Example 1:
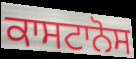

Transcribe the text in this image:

ਕਾਸਟਾਨੋਸ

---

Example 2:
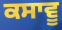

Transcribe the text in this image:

ਕਸਾਵੂ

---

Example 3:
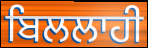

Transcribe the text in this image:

ਬਿਲਲਾਹੀ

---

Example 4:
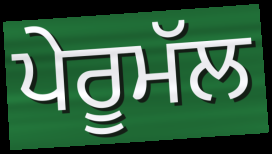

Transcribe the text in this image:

ਪੇਰੂਮੱਲ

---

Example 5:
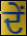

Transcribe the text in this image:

ਦੇਂ